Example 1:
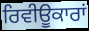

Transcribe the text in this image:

ਰਿਵੀਊਕਾਰਾਂ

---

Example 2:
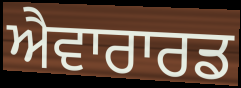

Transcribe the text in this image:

ਐਵਾਰਾਰਡ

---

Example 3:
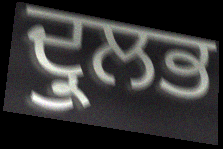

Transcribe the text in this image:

ਦ੍ਰੁਲਭ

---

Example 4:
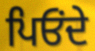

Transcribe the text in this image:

ਪਿਓਂਦੇ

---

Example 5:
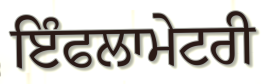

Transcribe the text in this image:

ਇੰਫਲਾਮੇਟਰੀ